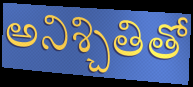
అనిశ్చితితో